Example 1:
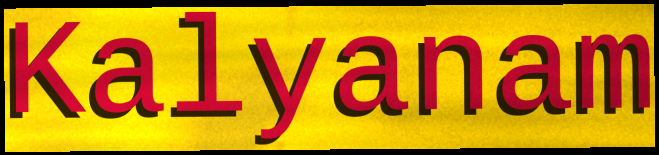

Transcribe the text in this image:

Kalyanam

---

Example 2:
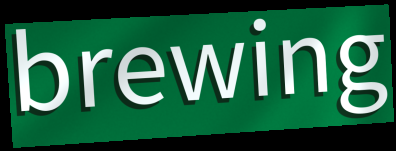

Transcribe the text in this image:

brewing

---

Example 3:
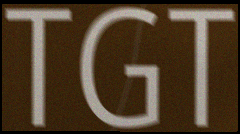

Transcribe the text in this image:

TGT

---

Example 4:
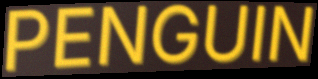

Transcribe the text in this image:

PENGUIN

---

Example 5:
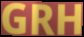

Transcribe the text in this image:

GRH